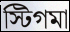
স্টিগমা